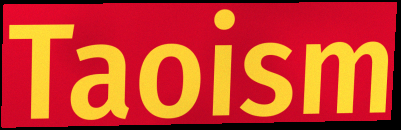
Taoism